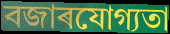
বজাৰযোগ্যতা